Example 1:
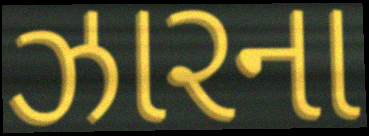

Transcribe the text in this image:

ઝારના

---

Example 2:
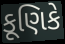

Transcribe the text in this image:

કૂણિકે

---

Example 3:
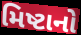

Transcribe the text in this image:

મિષ્ટાનો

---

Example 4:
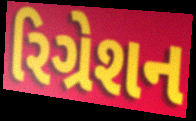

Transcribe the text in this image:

રિગ્રેશન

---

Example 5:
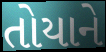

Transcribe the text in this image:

તોયાને